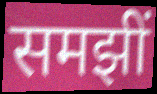
समझीं